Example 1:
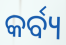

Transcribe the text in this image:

କର୍ବ୍ୟ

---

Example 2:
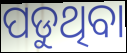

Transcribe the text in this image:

ପଡୁଥିବା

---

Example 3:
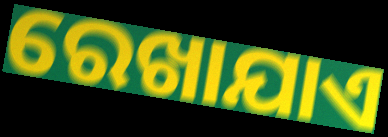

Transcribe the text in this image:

ରେଖାଯାଏ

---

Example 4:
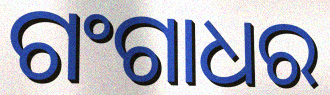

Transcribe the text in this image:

ଗଂଗାଧର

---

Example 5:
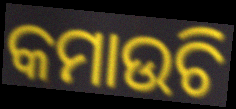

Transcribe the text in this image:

କମାଉଚି